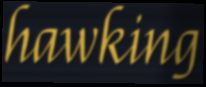
hawking